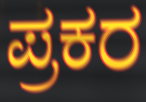
ಪ್ರಕರ